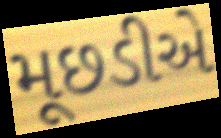
મૂછડીએ